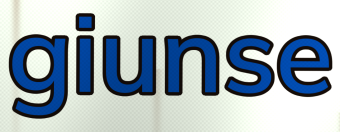
giunse